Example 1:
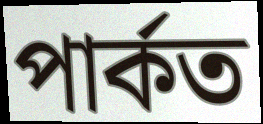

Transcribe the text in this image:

পাৰ্কত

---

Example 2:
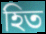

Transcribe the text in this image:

হিত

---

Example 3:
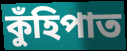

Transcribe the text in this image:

কুঁহিপাত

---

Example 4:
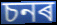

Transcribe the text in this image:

চনৰ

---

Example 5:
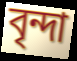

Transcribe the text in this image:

বৃন্দা